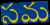
సమ